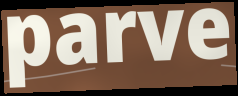
parve